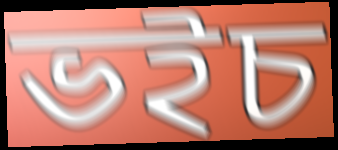
ভইচ